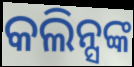
କଲିନ୍ସଙ୍କ